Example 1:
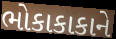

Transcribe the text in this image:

ભોકાકાકાને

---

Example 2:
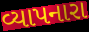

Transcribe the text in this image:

વ્યાપનારા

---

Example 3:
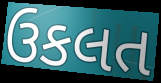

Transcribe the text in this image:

ઉકલત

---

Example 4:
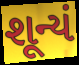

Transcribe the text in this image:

શૂન્યં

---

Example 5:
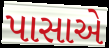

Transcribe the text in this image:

પાસાએ